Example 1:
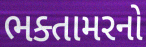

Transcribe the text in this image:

ભક્તામરનો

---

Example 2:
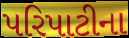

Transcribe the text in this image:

પરિપાટીના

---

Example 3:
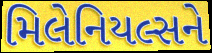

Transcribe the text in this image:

મિલેનિયલ્સને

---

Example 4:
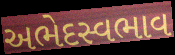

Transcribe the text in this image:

અભેદસ્વભાવ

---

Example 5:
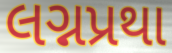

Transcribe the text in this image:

લગ્નપ્રથા